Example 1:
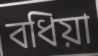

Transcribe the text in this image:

বধিয়া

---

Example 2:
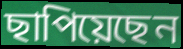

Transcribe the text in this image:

ছাপিয়েছেন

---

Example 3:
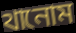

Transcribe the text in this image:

থানোম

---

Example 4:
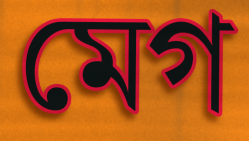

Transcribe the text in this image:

মেগ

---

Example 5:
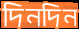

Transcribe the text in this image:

দিনদিন